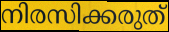
നിരസിക്കരുത്